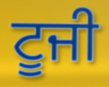
ਟੂਜੀ